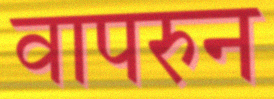
वापरुन